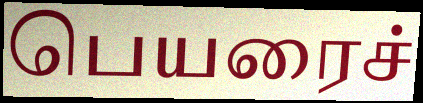
பெயரைச்